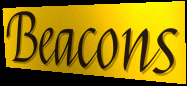
Beacons